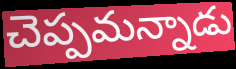
చెప్పమన్నాడు